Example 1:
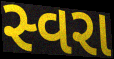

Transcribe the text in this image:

સ્વરા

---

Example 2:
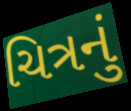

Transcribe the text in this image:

ચિત્રનું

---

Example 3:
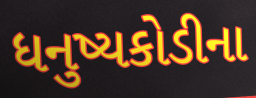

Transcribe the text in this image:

ધનુષ્યકોડીના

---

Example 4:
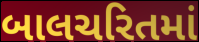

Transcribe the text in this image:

બાલચરિતમાં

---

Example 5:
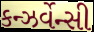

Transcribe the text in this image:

કન્ઝર્વેન્સી